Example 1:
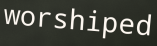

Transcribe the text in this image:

worshiped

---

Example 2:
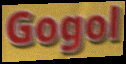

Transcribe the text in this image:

Gogol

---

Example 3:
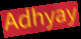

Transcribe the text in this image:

Adhyay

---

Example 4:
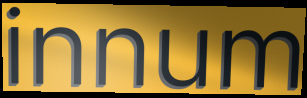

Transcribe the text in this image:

innum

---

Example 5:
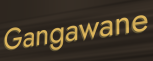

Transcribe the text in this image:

Gangawane